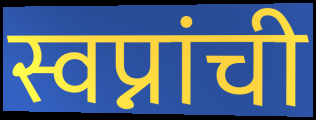
स्वप्नांची